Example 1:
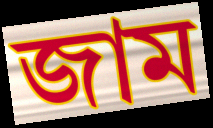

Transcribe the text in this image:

জাম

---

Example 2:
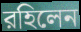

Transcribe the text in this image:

রহিলেন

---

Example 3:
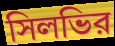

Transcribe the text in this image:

সিলভির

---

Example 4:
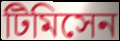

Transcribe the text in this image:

টিমিসেন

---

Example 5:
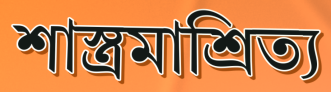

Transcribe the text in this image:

শাস্ত্রমাশ্রিত্য